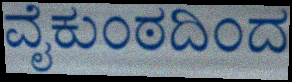
ವೈಕುಂಠದಿಂದ